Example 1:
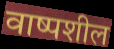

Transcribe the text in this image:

वाष्पशील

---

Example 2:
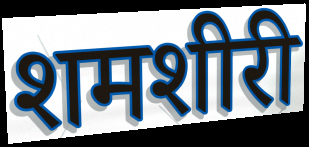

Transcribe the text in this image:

शमशीरी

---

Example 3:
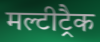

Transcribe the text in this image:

मल्टीट्रैक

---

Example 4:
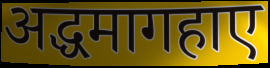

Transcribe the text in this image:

अद्धमागहाए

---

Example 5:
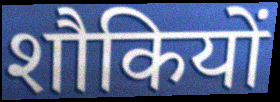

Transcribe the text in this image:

शौकियों